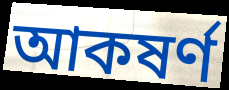
আকষৰ্ণ